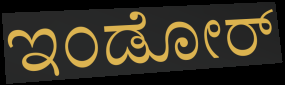
ಇಂಡೋರ್